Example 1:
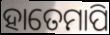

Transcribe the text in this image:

ହାତେମାପି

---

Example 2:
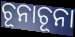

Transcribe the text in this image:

ଚୂନାଚୂନା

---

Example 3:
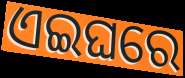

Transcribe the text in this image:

ଏଇଘରେ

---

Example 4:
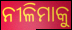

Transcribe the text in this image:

ନୀଳିମାକୁ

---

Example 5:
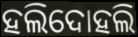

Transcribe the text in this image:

ହଲିଦୋହଲି